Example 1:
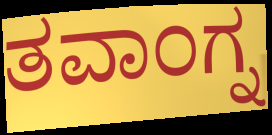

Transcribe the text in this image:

ತವಾಂಗ್ನ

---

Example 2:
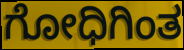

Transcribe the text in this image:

ಗೋಧಿಗಿಂತ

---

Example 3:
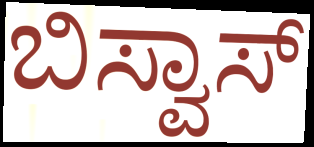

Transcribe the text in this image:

ಬಿಸ್ವಾಸ್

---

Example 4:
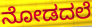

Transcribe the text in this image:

ನೋಡದಲೆ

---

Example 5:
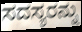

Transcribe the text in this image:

ಸದಸ್ಯರನ್ನು